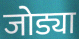
जोड्या